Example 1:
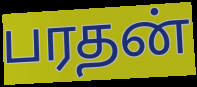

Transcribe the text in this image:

பரதன்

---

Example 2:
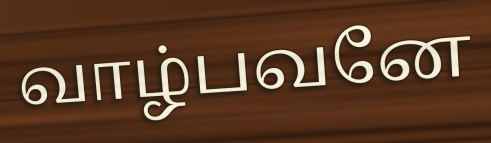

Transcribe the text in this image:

வாழ்பவனே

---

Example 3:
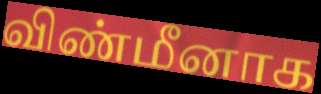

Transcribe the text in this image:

விண்மீனாக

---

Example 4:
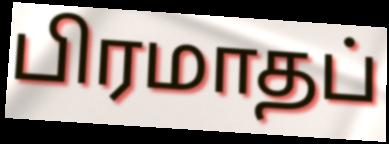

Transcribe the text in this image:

பிரமாதப்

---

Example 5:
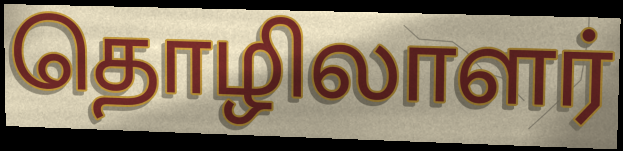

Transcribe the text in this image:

தொழிலாளர்